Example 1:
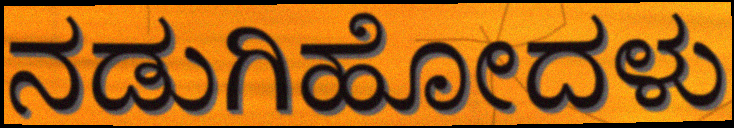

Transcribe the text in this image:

ನಡುಗಿಹೋದಳು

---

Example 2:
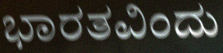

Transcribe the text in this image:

ಭಾರತವಿಂದು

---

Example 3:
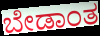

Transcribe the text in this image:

ಬೇಡಾಂತ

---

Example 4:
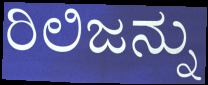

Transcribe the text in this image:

ರಿಲಿಜನ್ನು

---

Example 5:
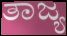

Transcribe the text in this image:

ತಾಜ್ಯ